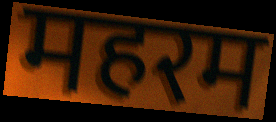
महरम